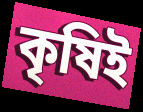
কৃষিই